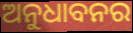
ଅନୁଧାବନର